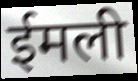
ईमली